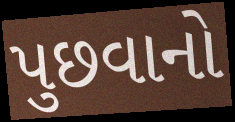
પુછવાનો